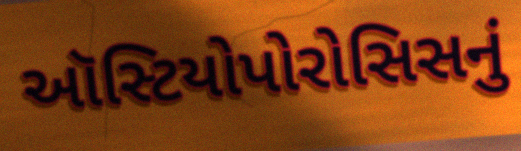
ઑસ્ટિયોપોરોસિસનું